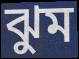
ঝুম